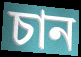
চান